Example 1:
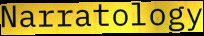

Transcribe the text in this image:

Narratology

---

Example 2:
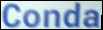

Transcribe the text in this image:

Conda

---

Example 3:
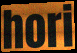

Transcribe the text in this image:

hori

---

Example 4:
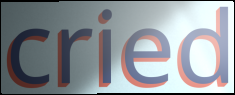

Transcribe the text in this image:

cried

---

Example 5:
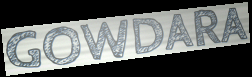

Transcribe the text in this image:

GOWDARA